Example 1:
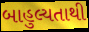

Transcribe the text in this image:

બાહુલ્યતાથી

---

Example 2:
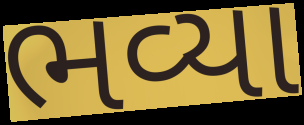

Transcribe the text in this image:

ભવ્યા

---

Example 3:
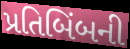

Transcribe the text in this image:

પ્રતિબિંબની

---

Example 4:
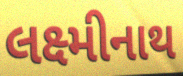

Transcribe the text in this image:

લક્ષ્મીનાથ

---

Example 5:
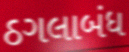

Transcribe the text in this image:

ઠગલાબંધ